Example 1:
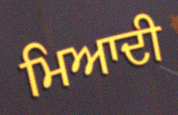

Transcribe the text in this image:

ਮਿਆਦੀ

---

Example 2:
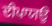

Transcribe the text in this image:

ਦੀਪਾਯਉ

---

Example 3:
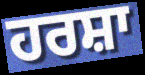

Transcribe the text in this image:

ਹਰਸ਼ਾ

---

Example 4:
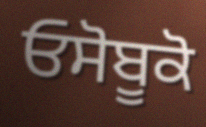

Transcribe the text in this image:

ਓਸੋਬੂਕੋ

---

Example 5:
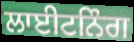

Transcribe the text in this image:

ਲਾਈਟਨਿੰਗ